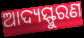
ଆଦ୍ୟସ୍ଫୁରଣ